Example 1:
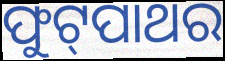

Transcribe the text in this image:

ଫୁଟ୍‌ପାଥର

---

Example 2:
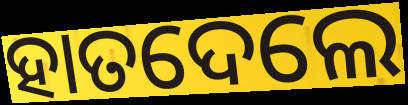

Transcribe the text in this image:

ହାତଦେଲେ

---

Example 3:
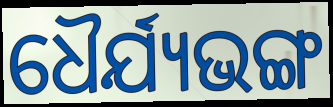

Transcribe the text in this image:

ଧୈର୍ଯ୍ୟଭଙ୍ଗ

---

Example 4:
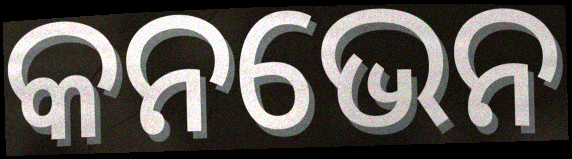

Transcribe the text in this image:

କନଭେନ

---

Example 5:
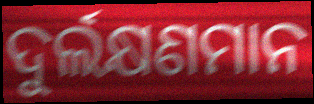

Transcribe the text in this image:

ଦୁର୍ଲକ୍ଷଣମାନ